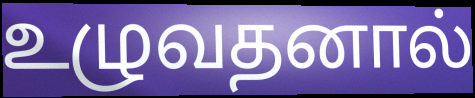
உழுவதனால்